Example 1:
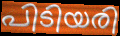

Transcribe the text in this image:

പിടിയരി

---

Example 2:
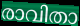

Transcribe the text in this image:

രാവിതാ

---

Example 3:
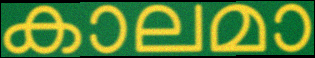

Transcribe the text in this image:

കാലമാ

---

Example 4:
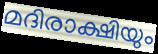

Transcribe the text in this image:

മദിരാക്ഷിയും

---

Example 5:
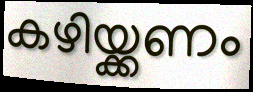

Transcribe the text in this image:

കഴിയ്ക്കണം